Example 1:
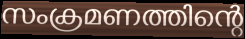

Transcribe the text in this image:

സംക്രമണത്തിന്റെ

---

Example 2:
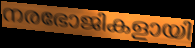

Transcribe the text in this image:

നരഭോജികളായി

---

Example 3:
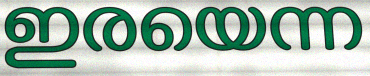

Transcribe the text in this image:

ഇരയെന്ന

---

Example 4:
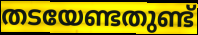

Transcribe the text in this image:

തടയേണ്ടതുണ്ട്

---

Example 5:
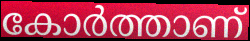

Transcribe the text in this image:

കോർത്താണ്